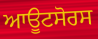
ਆਊਟਸੋਰਸ